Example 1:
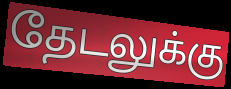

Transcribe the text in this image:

தேடலுக்கு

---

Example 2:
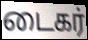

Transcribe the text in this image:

டைகர்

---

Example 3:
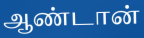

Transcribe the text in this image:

ஆண்டான்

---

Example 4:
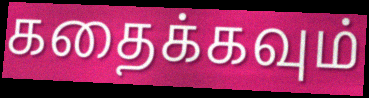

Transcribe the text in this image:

கதைக்கவும்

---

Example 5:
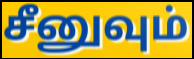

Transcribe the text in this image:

சீனுவும்